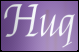
Huq